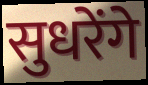
सुधरेंगे